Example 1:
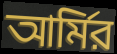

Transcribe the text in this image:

আর্মির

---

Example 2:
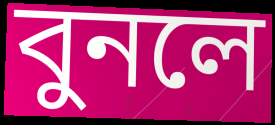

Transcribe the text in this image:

বুনলে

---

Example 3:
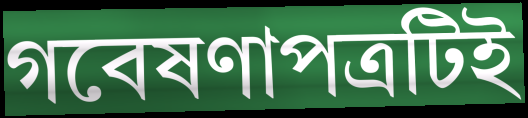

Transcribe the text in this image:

গবেষণাপত্রটিই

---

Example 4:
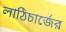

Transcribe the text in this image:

লাঠিচার্জের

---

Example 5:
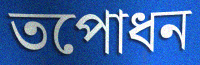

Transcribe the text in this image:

তপোধন